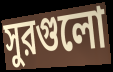
সুরগুলো